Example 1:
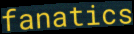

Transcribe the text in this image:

fanatics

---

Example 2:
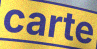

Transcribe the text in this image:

carte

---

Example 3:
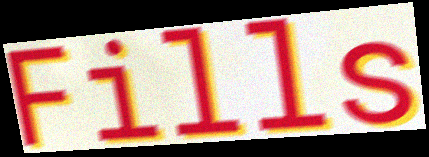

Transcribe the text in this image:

Fills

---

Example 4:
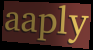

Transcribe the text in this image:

aaply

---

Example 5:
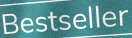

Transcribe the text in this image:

Bestseller